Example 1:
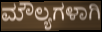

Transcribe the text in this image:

ಮೌಲ್ಯಗಳಾಗಿ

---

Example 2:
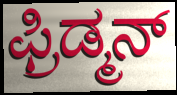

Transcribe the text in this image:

ಫ್ರಿಡ್ಮನ್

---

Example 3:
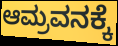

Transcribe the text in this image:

ಆಮ್ರವನಕ್ಕೆ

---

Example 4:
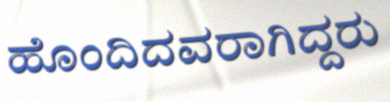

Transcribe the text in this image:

ಹೊಂದಿದವರಾಗಿದ್ದರು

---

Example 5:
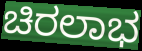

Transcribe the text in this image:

ಚಿರಲಾಭ